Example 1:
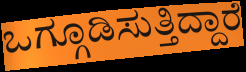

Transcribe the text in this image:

ಒಗ್ಗೂಡಿಸುತ್ತಿದ್ದಾರೆ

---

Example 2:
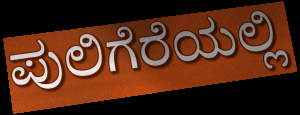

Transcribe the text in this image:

ಪುಲಿಗೆರೆಯಲ್ಲಿ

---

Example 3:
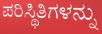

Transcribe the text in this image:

ಪರಿಸ್ಥಿತಿಗಳನ್ನು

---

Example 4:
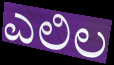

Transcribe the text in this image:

ಎಲಿಲ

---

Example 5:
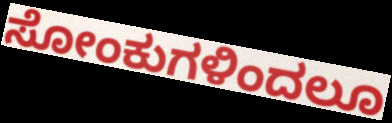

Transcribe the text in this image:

ಸೋಂಕುಗಳಿಂದಲೂ